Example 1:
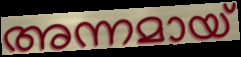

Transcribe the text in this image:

അന്നമായ്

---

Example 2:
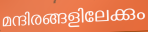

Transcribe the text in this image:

മന്ദിരങ്ങളിലേക്കും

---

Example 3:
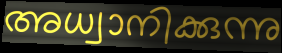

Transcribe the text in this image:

അധ്വാനിക്കുന്നു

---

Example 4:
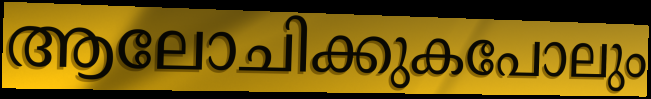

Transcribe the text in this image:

ആലോചിക്കുകപോലും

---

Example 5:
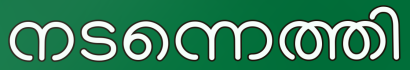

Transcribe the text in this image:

നടന്നെത്തി